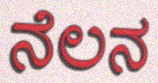
ನೆಲನ